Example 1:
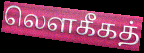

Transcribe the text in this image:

லௌகீகத்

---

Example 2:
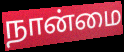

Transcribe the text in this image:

நான்மை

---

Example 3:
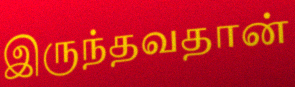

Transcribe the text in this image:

இருந்தவதான்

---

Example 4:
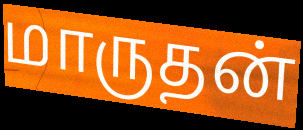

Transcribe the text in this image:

மாருதன்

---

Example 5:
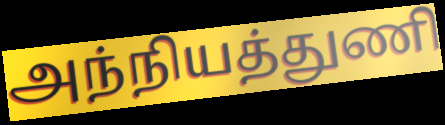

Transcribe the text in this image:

அந்நியத்துணி